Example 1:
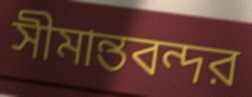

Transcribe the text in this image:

সীমান্তবন্দর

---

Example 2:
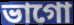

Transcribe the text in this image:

ভাগো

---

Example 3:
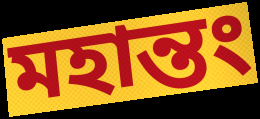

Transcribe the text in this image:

মহান্তং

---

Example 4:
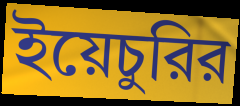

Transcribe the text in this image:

ইয়েচুরির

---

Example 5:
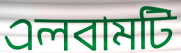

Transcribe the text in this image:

এলবামটি